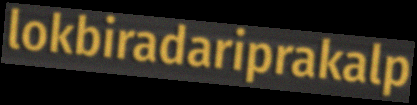
lokbiradariprakalp